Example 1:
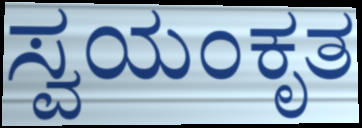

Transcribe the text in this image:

ಸ್ವಯಂಕೃತ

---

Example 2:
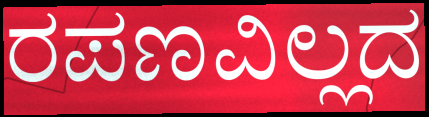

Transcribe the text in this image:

ರಪಣವಿಲ್ಲದ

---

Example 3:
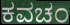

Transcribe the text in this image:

ಕವಚಂ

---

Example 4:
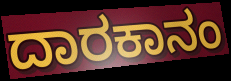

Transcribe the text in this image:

ದಾರಕಾನಂ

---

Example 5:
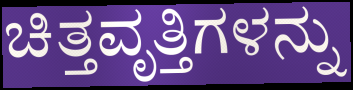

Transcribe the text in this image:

ಚಿತ್ತವೃತ್ತಿಗಳನ್ನು